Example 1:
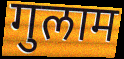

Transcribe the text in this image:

गुलाम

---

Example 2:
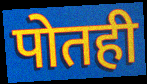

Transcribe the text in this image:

पोतही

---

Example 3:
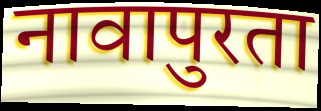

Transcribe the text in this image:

नावापुरता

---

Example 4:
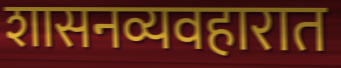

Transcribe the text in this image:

शासनव्यवहारात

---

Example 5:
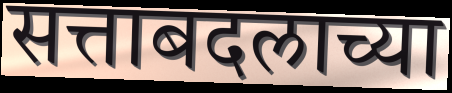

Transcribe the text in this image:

सत्ताबदलाच्या